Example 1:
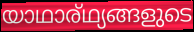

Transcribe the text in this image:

യാഥാര്ഥ്യങ്ങളുടെ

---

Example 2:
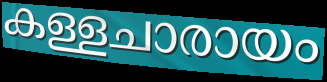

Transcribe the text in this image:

കള്ളചാരായം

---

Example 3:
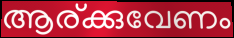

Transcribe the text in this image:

ആര്ക്കുവേണം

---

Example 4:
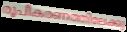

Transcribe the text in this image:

രൂപീകരണത്തിലേക്കു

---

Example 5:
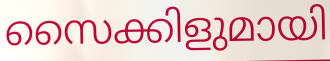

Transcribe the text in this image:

സൈക്കിളുമായി